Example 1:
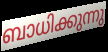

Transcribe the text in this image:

ബാധിക്കുന്നു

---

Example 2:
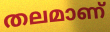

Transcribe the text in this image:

തലമാണ്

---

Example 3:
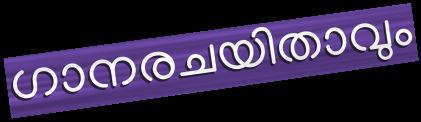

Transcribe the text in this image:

ഗാനരചയിതാവും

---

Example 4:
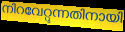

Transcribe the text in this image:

നിറവേറ്റുന്നതിനായി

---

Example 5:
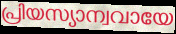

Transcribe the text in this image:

പ്രിയസ്യാന്വവായേ